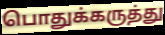
பொதுக்கருத்து